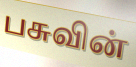
பசுவின்